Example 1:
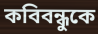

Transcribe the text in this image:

কবিবন্ধুকে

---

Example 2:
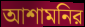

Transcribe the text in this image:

আশামনির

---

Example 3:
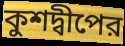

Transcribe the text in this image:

কুশদ্বীপের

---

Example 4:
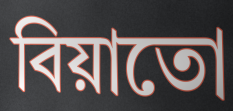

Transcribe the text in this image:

বিয়াতো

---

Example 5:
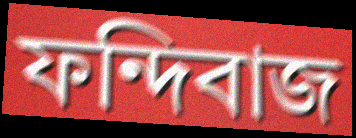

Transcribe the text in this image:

ফন্দিবাজ